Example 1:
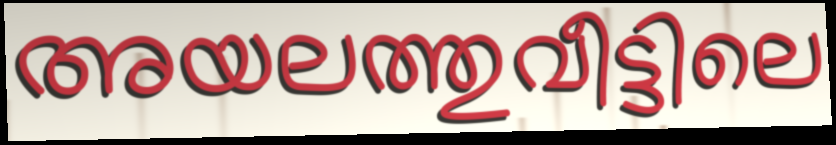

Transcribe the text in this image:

അയലത്തുവീട്ടിലെ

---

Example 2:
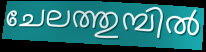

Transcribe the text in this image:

ചേലത്തുമ്പിൽ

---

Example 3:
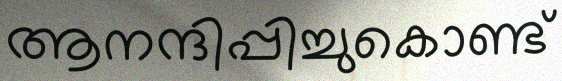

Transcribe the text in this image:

ആനന്ദിപ്പിച്ചുകൊണ്ട്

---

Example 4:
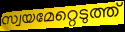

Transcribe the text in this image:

സ്വയമേറ്റെടുത്ത്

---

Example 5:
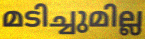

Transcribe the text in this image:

മടിച്ചുമില്ല